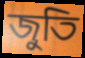
জুতি